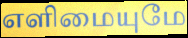
எளிமையுமே